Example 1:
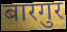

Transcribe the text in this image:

बारगुर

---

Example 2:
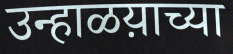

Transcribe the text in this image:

उन्हाळय़ाच्या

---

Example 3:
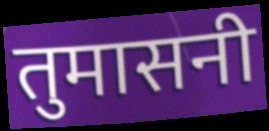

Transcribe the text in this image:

तुमासनी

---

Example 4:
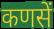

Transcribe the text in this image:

कणसें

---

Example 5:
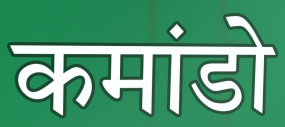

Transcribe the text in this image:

कमांडो